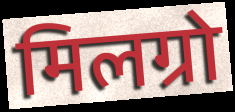
मिलग्रो